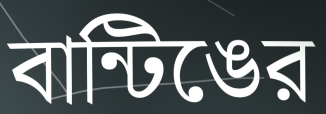
বান্টিঙের